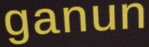
ganun